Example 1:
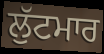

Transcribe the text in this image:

ਲੁੱਟਮਾਰ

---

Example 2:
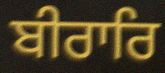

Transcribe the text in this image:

ਬੀਰਾਰਿ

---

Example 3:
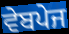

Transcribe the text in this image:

ਵੇਬਪੇਜ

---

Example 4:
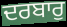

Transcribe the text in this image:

ਦਰਬਾਰੁ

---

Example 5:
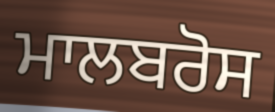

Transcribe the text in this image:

ਮਾਲਬਰੋਸ